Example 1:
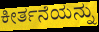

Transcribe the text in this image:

ಕೀರ್ತನೆಯನ್ನು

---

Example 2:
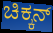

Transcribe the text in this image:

ಚಿಕ್ಕನ್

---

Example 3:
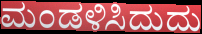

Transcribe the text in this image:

ಮಂಡಳಿಸಿದುದು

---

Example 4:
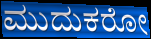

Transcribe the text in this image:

ಮುದುಕರೋ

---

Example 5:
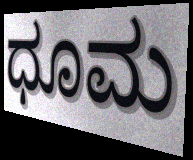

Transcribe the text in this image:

ಧೂಮ